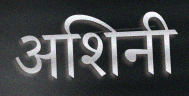
अशिनी